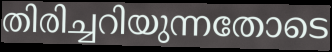
തിരിച്ചറിയുന്നതോടെ